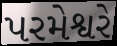
પરમેશ્વરે